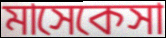
মাসেকেসা